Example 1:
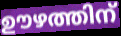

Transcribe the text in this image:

ഊഴത്തിന്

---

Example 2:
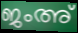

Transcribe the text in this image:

ജംഅ്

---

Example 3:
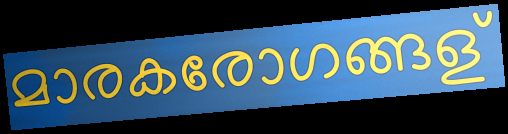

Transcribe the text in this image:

മാരകരോഗങ്ങള്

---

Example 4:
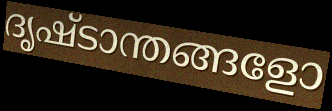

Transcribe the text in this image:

ദൃഷ്ടാന്തങ്ങളോ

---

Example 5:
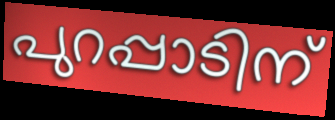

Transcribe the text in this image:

പുറപ്പാടിന്